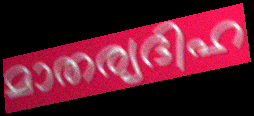
മാതര്യദിഹ